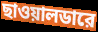
ছাওয়ালডারে